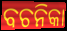
ବଚନିକା